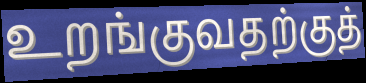
உறங்குவதற்குத்